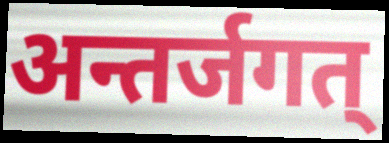
अन्तर्जगत्